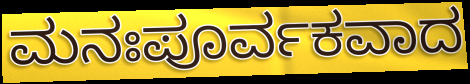
ಮನಃಪೂರ್ವಕವಾದ